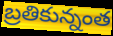
బ్రతికున్నంత